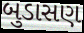
બુડાસણ